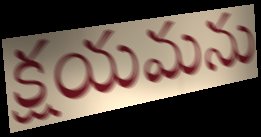
క్షయమను